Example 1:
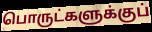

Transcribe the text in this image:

பொருட்களுக்குப்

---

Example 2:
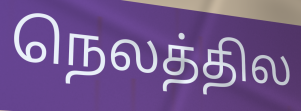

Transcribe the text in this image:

நெலத்தில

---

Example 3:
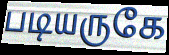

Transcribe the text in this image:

படியருகே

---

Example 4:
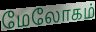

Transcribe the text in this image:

மேலோகம்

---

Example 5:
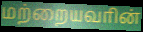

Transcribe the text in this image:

மற்றையவரின்